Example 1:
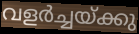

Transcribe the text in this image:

വളർച്ചയ്ക്കു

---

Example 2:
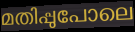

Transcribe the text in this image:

മതിപ്പുപോലെ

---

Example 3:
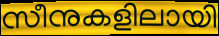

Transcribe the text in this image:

സീനുകളിലായി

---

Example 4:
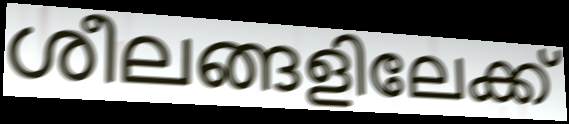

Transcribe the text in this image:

ശീലങ്ങളിലേക്ക്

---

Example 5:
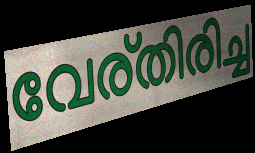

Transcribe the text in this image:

വേര്തിരിച്ച